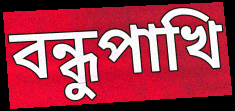
বন্ধুপাখি